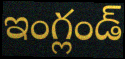
ఇంగ్లండ్